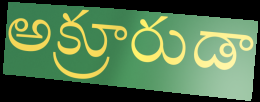
అక్రూరుడా